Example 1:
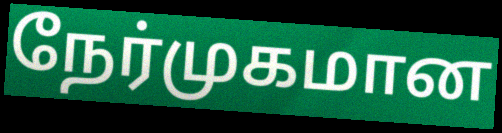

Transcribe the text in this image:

நேர்முகமான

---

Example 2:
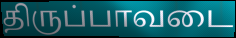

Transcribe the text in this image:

திருப்பாவடை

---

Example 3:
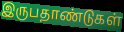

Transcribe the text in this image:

இருபதாண்டுகள்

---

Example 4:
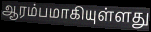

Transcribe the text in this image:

ஆரம்பமாகியுள்ளது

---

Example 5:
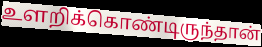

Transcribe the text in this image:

உளறிக்கொண்டிருந்தான்